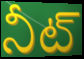
నీట్